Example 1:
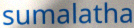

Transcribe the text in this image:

sumalatha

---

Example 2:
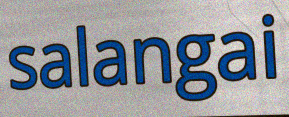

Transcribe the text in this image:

salangai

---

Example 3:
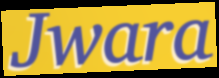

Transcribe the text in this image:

Jwara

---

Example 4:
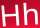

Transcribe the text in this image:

Hh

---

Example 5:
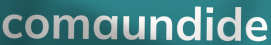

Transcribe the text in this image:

comaundide